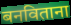
बनविताना